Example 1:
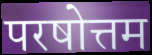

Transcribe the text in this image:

परषोत्तम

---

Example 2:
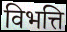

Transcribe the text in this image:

विभत्ति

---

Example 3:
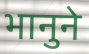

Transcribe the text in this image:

भानुने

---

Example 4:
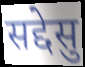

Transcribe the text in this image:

सद्देसु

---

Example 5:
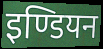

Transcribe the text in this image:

इण्डियन